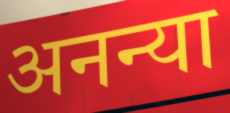
अनन्या